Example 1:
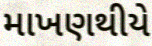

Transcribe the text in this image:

માખણથીયે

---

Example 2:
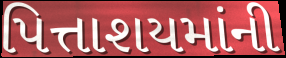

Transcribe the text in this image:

પિત્તાશયમાંની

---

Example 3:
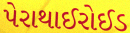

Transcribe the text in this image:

પેરાથાઈરોઈડ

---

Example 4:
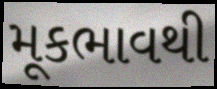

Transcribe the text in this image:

મૂકભાવથી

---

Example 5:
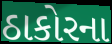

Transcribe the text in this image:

ઠાકોરના